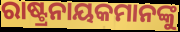
ରାଷ୍ଟ୍ରନାୟକମାନଙ୍କୁ